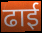
ढाई